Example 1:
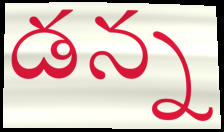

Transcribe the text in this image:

డన్న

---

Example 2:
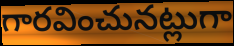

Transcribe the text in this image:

గారవించునట్లుగా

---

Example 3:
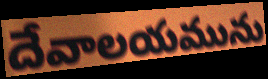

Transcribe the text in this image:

దేవాలయమును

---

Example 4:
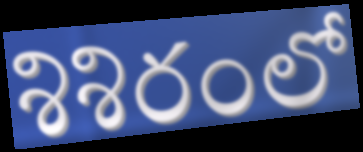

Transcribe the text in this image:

శిశిరంలో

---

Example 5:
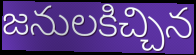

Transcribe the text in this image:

జనులకిచ్చిన